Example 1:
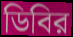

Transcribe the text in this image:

ডিবির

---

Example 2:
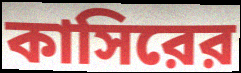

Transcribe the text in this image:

কাসিরের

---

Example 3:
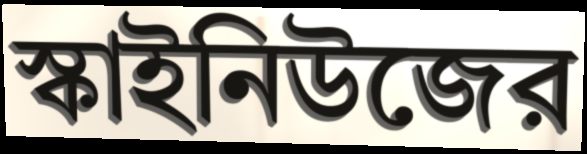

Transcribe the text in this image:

স্কাইনিউজের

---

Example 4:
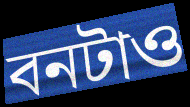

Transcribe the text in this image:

বনটাও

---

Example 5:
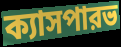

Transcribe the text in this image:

ক্যাসপারভ